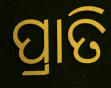
ପ୍ରାତି